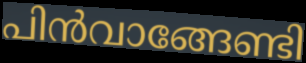
പിൻവാങ്ങേണ്ടി